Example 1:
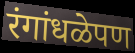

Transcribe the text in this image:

रंगांधळेपण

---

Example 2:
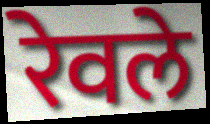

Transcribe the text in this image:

रेवले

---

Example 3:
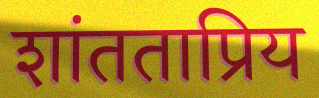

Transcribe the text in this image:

शांतताप्रिय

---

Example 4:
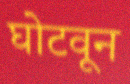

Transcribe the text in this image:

घोटवून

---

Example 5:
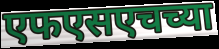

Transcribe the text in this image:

एफएसएचच्या